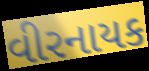
વીરનાયક